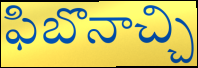
ఫిబొనాచ్చి